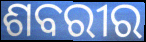
ଶବରୀର